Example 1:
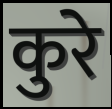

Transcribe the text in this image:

कुरे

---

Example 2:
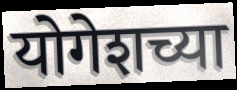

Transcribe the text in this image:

योगेशच्या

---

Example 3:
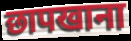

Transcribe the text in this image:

छापखाना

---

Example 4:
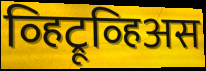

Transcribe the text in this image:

व्हिट्रूव्हिअस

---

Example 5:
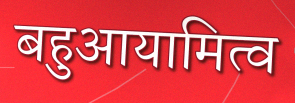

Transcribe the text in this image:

बहुआयामित्व